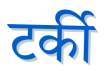
टर्की